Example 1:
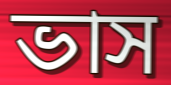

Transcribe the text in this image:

ভাস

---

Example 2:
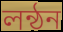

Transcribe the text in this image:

লন্ঠন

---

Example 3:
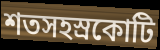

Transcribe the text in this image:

শতসহস্রকোটি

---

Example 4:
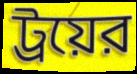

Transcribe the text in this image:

ট্রয়ের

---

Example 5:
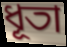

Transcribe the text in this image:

ধূতা